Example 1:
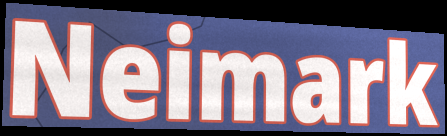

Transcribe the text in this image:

Neimark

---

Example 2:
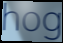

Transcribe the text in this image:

hog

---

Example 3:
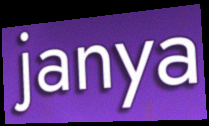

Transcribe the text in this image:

janya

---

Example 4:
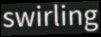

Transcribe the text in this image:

swirling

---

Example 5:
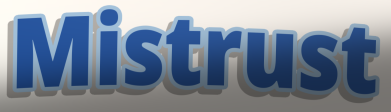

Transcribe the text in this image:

Mistrust